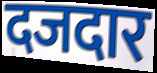
दजदार